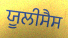
ਯੂਲੀਸੈਸ